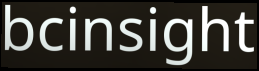
bcinsight